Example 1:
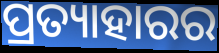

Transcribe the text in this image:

ପ୍ରତ୍ୟାହାରର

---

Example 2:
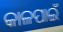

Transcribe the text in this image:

କାଳପାଇଁ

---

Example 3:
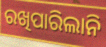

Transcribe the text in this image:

ରଖିପାରିଲାନି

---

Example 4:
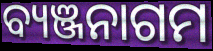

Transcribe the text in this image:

ବ୍ୟଞ୍ଜନାଗମ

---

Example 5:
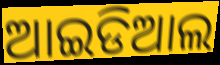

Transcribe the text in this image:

ଆଇଡିଆଲ